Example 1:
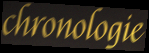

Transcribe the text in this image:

chronologie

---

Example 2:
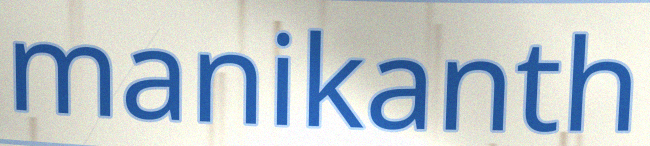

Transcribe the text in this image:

manikanth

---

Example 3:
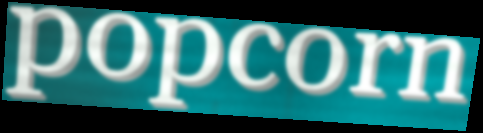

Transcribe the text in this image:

popcorn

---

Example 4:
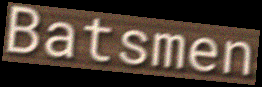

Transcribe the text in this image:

Batsmen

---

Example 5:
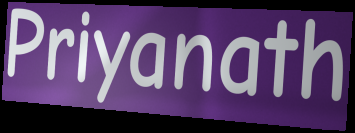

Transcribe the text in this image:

Priyanath